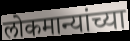
लोकमान्यांच्या